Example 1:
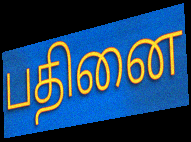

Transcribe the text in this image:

பதினை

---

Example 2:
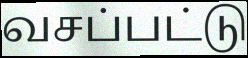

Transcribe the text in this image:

வசப்பட்டு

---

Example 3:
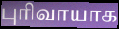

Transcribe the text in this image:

புரிவாயாக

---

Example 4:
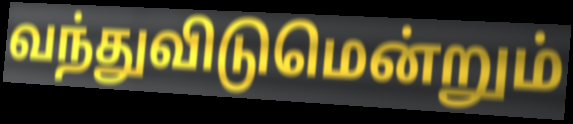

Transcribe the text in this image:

வந்துவிடுமென்றும்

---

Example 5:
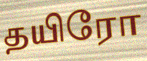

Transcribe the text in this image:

தயிரோ